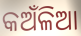
କଅଁଳିଆ